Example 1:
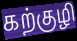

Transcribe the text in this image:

கற்குழி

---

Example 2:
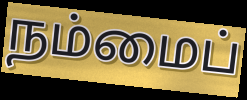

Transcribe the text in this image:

நம்மைப்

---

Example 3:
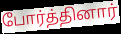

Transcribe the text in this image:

போர்த்தினார்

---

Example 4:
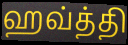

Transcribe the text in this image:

ஹவ்த்தி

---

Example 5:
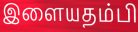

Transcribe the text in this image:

இளையதம்பி